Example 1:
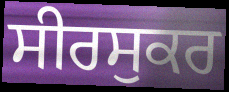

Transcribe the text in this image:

ਸੀਰਸੁਕਰ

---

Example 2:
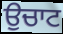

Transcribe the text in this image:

ਉਚਾਟ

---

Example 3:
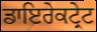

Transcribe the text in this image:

ਡਾਇਰੇਕਟ੍ਰੇਟ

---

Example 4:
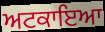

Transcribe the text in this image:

ਅਟਕਾਇਆ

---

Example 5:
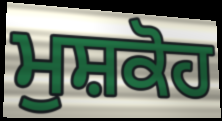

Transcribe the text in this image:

ਮੁਸ਼ਕੋਹ